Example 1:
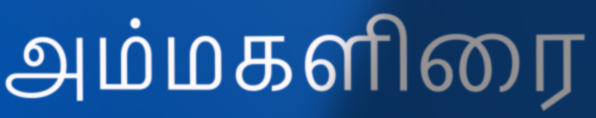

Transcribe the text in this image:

அம்மகளிரை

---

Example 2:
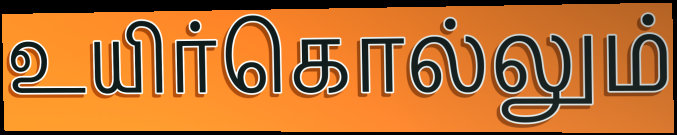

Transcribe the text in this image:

உயிர்கொல்லும்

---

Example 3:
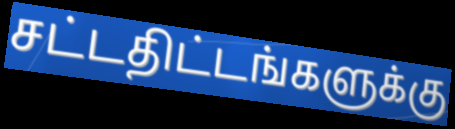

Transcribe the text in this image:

சட்டதிட்டங்களுக்கு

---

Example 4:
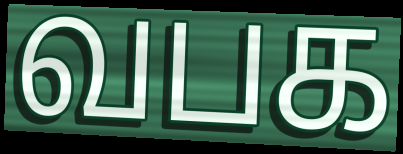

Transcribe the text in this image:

வபக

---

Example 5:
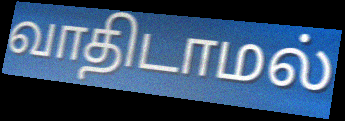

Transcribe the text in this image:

வாதிடாமல்